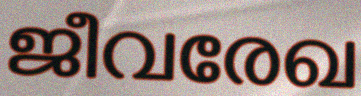
ജീവരേഖ